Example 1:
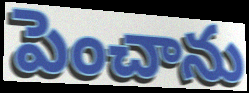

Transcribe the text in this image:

పెంచాను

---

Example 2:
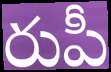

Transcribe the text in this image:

రుపీ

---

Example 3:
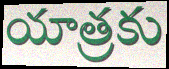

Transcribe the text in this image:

యాత్రకు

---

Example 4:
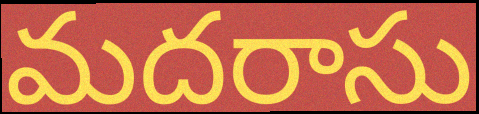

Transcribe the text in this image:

మదరాసు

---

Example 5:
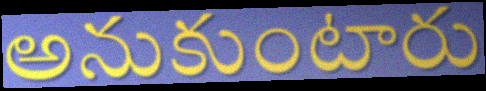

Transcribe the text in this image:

అనుకుంటారు